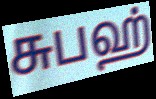
சுபஹ்